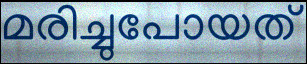
മരിച്ചുപോയത്